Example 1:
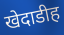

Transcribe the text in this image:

खेदाडीह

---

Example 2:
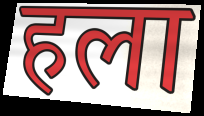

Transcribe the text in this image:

हला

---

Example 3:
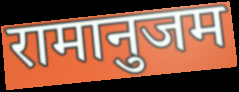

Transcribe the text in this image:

रामानुजम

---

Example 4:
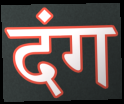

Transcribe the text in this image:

दंग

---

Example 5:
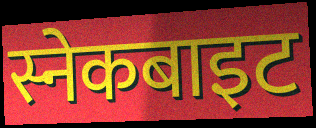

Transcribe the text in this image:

स्नेकबाइट